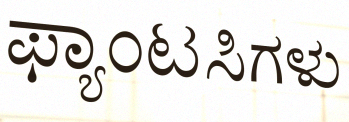
ಫ್ಯಾಂಟಸಿಗಳು